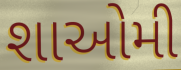
શાઓમી